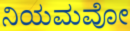
ನಿಯಮವೋ